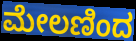
ಮೇಲಣಿಂದ